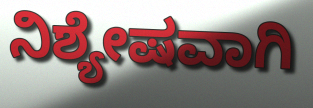
ನಿಶ್ಯೇಷವಾಗಿ